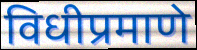
विधीप्रमाणे